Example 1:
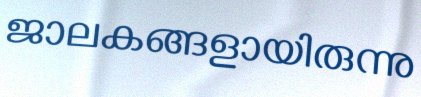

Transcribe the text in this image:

ജാലകങ്ങളായിരുന്നു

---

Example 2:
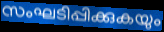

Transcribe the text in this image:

സംഘടിപ്പിക്കുകയും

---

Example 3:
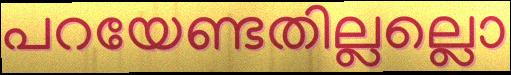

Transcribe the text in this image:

പറയേണ്ടതില്ലല്ലൊ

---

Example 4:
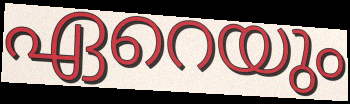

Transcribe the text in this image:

ഏറെയും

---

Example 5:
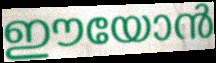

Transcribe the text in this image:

ഈയോൻ